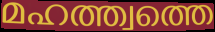
മഹത്ത്വത്തെ